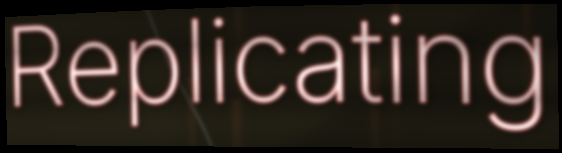
Replicating